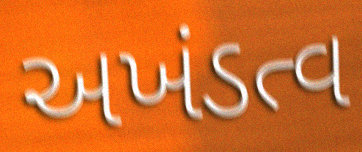
અખંડત્વ